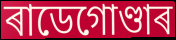
ৰাডেগোণ্ডাৰ